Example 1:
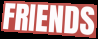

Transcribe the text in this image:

FRIENDS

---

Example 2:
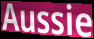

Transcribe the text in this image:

Aussie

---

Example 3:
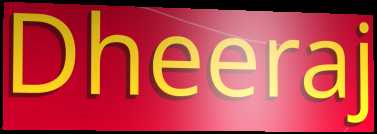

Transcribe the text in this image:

Dheeraj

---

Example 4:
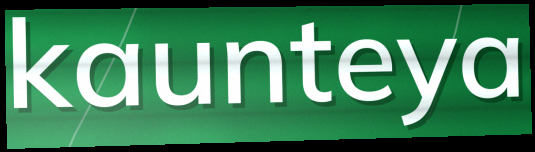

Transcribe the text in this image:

kaunteya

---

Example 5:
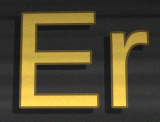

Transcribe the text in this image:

Er